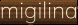
migilina